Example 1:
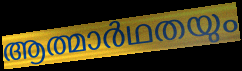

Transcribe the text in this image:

ആത്മാർഥതയും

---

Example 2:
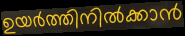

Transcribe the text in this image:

ഉയർത്തിനിൽക്കാൻ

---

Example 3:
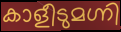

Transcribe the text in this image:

കാളീടുമഗ്നി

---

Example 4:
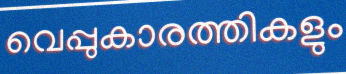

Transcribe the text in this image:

വെപ്പുകാരത്തികളും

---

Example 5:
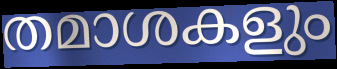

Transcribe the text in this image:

തമാശകളും